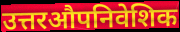
उत्तरऔपनिवेशिक